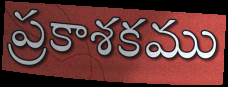
ప్రకాశకము